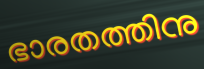
ഭാരതത്തിനു